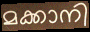
മക്കാനി